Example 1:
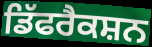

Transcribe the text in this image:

ਡਿੱਫਰੈਕਸ਼ਨ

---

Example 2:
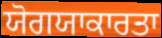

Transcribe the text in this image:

ਯੋਗਯਾਕਾਰਤਾ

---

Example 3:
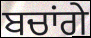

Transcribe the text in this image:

ਬਚਾਂਗੇ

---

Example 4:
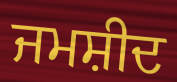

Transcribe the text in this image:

ਜਮਸ਼ੀਦ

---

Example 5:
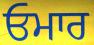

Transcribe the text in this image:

ਓਮਾਰ